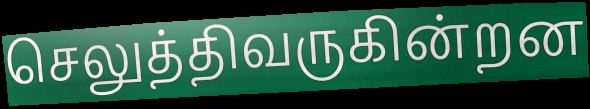
செலுத்திவருகின்றன